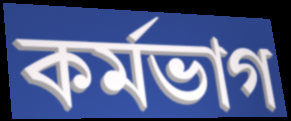
কৰ্মভাগ